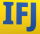
IFJ